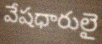
వేషధారులై